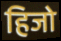
हिजो